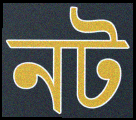
নট